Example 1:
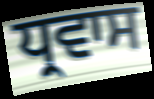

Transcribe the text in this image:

ਧ੍ਰਵਾਸ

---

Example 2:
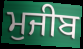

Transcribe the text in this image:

ਮੁਜੀਬ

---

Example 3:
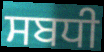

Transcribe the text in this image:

ਸਬਧੀ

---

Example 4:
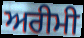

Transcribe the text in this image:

ਅਰੀਮੀ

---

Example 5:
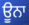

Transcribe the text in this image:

ਊਨਾ